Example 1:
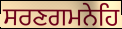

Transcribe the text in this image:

ਸਰਣਗਮਨੇਹਿ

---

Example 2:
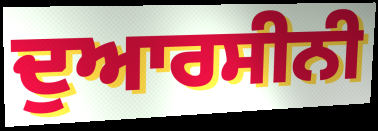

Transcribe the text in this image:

ਦੁਆਰਸੀਨੀ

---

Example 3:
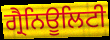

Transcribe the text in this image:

ਗ੍ਰੈਨਿਊਲਿਟੀ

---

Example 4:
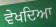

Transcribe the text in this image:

ਵੇਖਦਿਆ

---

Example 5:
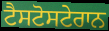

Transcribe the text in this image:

ਟੈਸਟੋਸਟੇਰਾਨ